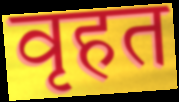
वृहत